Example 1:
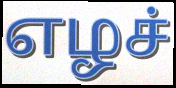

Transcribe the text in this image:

எழச்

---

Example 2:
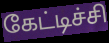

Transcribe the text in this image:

கேட்டிச்சி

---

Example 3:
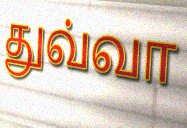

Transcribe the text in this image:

துவ்வா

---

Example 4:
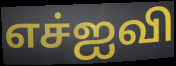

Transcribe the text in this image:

எச்ஐவி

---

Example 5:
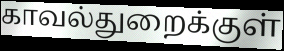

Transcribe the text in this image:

காவல்துறைக்குள்